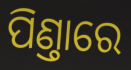
ପିଣ୍ତାରେ